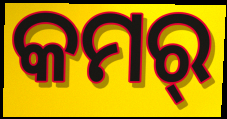
କମର୍